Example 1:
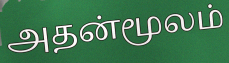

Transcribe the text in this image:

அதன்மூலம்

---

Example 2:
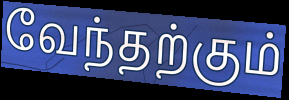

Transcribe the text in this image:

வேந்தற்கும்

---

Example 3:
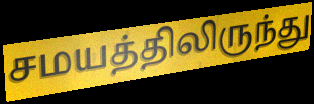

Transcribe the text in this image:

சமயத்திலிருந்து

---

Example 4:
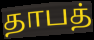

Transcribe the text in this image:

தாபத்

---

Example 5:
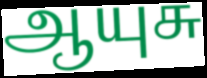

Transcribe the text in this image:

ஆயுசு